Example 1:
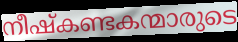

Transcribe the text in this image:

നീഷ്കണ്ടകന്മാരുടെ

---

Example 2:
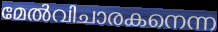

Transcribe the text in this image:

മേൽവിചാരകനെന്ന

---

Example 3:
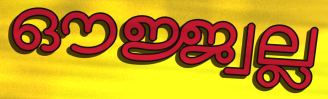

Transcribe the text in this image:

ഔജ്ജ്വല്ല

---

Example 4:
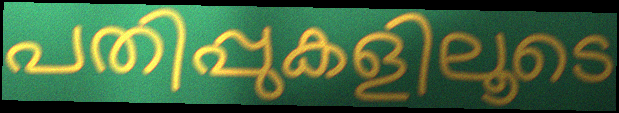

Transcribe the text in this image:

പതിപ്പുകളിലൂടെ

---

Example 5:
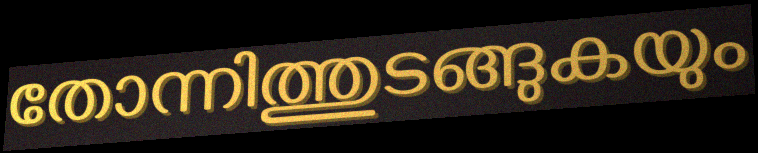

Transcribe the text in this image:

തോന്നിത്തുടങ്ങുകയും